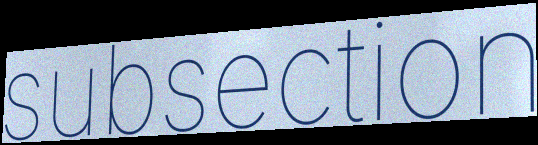
subsection